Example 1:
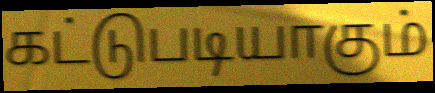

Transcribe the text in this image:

கட்டுபடியாகும்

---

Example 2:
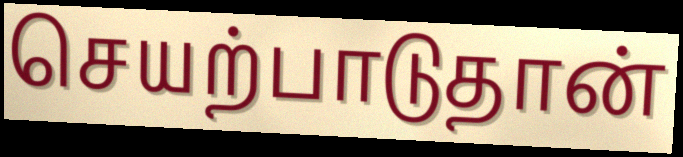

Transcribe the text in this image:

செயற்பாடுதான்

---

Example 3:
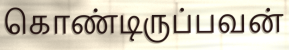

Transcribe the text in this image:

கொண்டிருப்பவன்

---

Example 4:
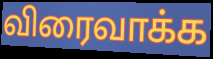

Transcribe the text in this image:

விரைவாக்க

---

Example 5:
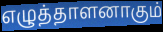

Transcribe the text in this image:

எழுத்தாளனாகும்